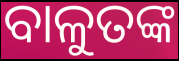
ବାଳୁତଙ୍କ